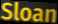
Sloan